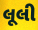
લૂલી